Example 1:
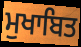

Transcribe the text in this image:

ਮੁਖਾਬਿਤ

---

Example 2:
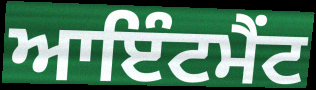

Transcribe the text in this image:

ਆਇੰਟਮੈਂਟ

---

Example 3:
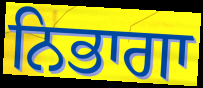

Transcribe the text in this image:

ਨਿਭਾਗਾ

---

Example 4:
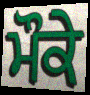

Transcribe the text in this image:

ਮੌਕੇ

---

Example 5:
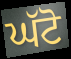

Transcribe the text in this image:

ਘੱਟੋ